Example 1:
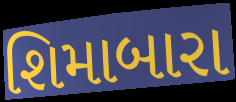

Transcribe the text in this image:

શિમાબારા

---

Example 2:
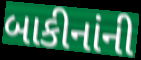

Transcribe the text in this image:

બાકીનાંની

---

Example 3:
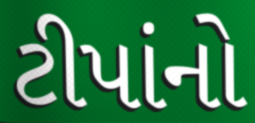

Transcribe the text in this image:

ટીપાંનો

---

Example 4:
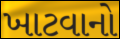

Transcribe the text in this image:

ખાટવાનો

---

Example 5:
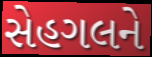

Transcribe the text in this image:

સેહગલને